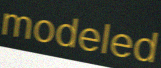
modeled